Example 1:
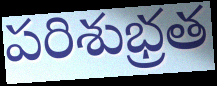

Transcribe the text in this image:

పరిశుభ్రత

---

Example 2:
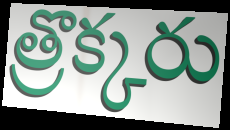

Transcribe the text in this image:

త్రొక్కరు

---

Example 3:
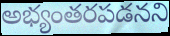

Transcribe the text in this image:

అభ్యంతరపడనని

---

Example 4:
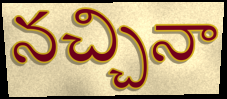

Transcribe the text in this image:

నచ్చినా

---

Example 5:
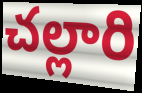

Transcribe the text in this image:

చల్లారి